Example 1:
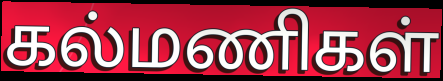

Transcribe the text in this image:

கல்மணிகள்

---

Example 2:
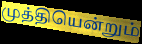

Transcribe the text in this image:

முத்தியென்றும்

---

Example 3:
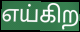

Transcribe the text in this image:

எய்கிற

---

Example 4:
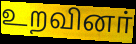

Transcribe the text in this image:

உறவினர்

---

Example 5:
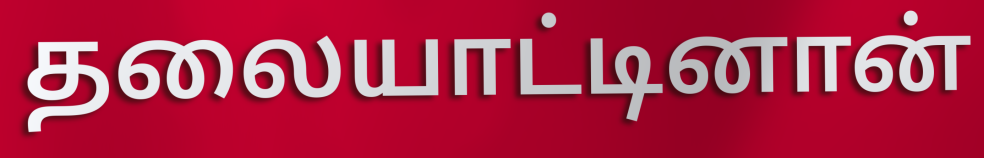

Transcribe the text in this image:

தலையாட்டினான்